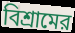
বিশ্রামের